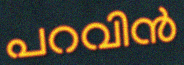
പറവിൻ